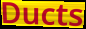
Ducts